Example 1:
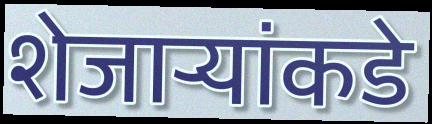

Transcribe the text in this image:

शेजाऱ्यांकडे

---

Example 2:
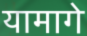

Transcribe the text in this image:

यामागे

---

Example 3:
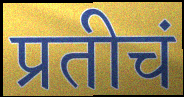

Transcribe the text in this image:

प्रतीचं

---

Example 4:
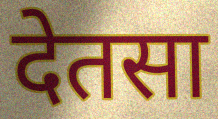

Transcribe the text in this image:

देतसा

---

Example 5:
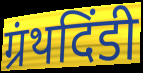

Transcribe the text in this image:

ग्रंथदिंडी